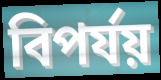
বিপৰ্যয়